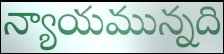
న్యాయమున్నది